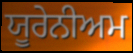
ਯੂਰੇਨੀਅਮ